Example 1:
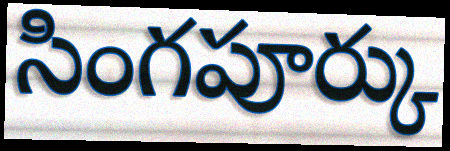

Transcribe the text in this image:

సింగపూర్కు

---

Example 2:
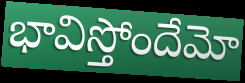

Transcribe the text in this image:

భావిస్తోందేమో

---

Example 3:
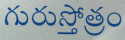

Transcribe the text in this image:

గురుస్తోత్రం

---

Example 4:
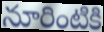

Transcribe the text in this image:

నూరింటికి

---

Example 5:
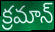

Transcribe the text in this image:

క్రమాన్